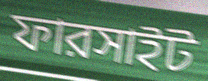
ফারসাইট